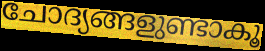
ചോദ്യങ്ങളുണ്ടാകൂ